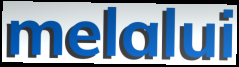
melalui